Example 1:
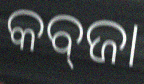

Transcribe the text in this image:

କବ୍‍ଜା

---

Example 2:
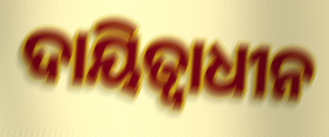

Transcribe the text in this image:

ଦାୟିତ୍ଵାଧୀନ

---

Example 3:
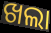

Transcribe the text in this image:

ଖଲା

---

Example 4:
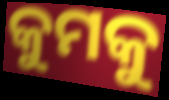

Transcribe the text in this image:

କୁମକୁ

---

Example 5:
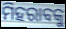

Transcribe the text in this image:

ମିହରାବକୁ